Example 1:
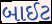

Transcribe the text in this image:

બાઈટ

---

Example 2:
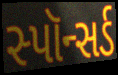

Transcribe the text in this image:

સ્પૉન્સર્ડ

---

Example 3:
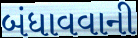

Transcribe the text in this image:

બંધાવવાની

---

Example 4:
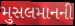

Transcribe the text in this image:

મુસલમાનની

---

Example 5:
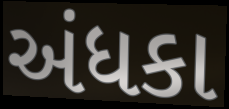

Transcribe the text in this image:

અંધકા